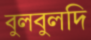
বুলবুলদি